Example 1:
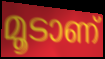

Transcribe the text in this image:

മൂടാണ്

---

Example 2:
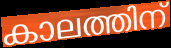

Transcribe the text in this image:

കാലത്തിന്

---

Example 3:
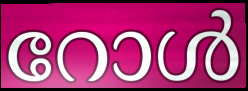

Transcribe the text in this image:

റോൾ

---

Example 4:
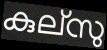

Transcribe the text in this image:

കുല്സു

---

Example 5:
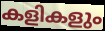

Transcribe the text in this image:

കളികളും